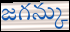
జగన్కు